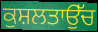
ਕੁਸ਼ਲਤਾਉੱਚ